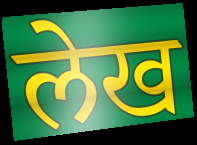
लेख